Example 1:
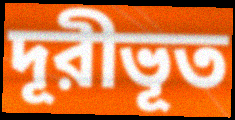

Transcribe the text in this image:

দূরীভূত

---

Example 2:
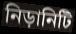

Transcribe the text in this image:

নিড়ানিটি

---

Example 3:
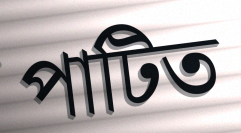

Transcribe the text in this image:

পাটিত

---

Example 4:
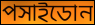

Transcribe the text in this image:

পসাইডোন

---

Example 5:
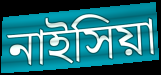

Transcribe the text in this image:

নাইসিয়া